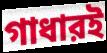
গাধারই